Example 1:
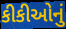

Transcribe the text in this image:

કીકીઓનું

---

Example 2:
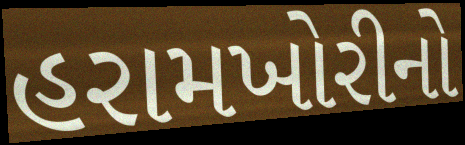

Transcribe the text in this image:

હરામખોરીનો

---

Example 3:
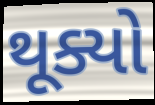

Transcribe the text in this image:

થૂક્યો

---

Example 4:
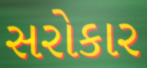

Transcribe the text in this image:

સરોકાર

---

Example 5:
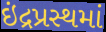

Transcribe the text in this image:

ઇંદ્રપ્રસ્થમાં